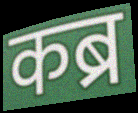
कब्र